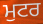
ਮੁਟਰ